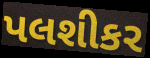
પલશીકર